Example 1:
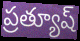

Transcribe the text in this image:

ప్రత్యూష్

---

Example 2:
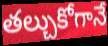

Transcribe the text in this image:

తల్చుకోగానే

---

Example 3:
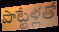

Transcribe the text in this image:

పొట్టేళ్లతో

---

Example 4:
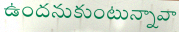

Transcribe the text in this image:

ఉందనుకుంటున్నావా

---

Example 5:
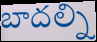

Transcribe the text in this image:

బాదల్ని